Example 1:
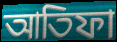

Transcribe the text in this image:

আতিফা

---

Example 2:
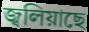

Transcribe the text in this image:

জ্বলিয়াছে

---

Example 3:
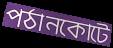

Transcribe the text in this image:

পঠানকোটে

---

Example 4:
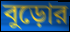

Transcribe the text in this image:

বুড়োর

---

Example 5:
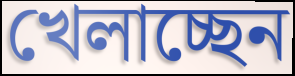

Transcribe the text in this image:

খেলাচ্ছেন